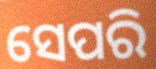
ସେପରି